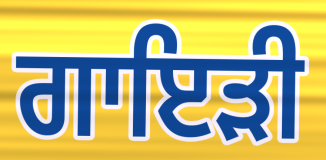
ਗਾਇੜੀ